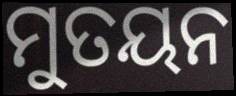
ମୁତୟନ